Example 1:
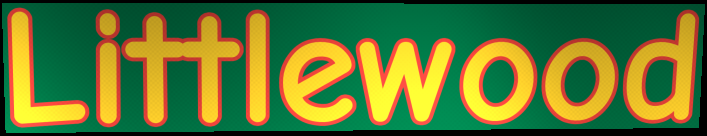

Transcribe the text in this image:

Littlewood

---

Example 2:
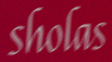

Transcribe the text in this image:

sholas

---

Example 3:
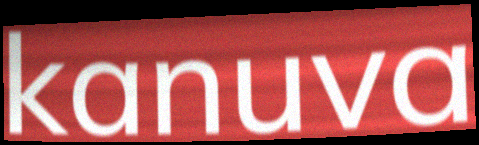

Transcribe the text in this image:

kanuva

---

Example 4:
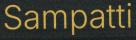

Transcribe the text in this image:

Sampatti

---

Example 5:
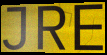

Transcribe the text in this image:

JRE